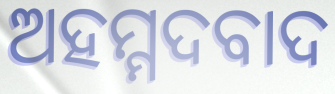
ଅହମ୍ମଦବାଦ